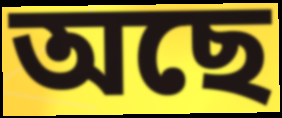
অছে